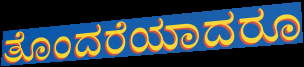
ತೊಂದರೆಯಾದರೂ